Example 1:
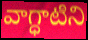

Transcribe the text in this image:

వాగ్ధాటిని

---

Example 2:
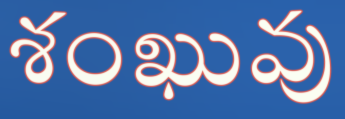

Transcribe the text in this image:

శంఖువు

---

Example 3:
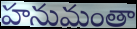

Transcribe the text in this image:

హనుమంతా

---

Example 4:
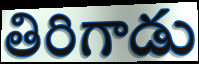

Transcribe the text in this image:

తిరిగాడు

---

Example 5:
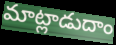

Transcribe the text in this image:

మాట్లాడుదాం